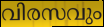
വിരസവും